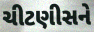
ચીટણીસને